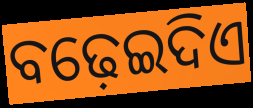
ବଢ଼େଇଦିଏ